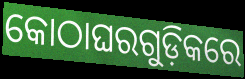
କୋଠାଘରଗୁଡ଼ିକରେ